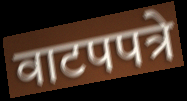
वाटपपत्रे